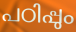
പഠിപ്പും